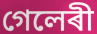
গেলেৰী